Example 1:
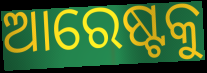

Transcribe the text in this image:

ଆରେଷ୍ଟକୁ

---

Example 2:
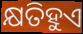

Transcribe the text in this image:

କ୍ଷତିହୁଏ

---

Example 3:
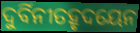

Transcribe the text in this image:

ଦୁର୍ବିନୀତହୃଦୟେନ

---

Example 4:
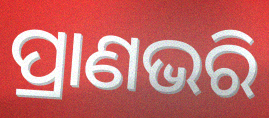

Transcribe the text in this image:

ପ୍ରାଣଭରି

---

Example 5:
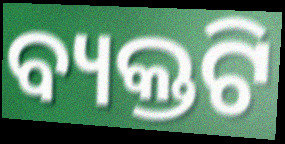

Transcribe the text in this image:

ବ୍ୟକ୍ତଟି